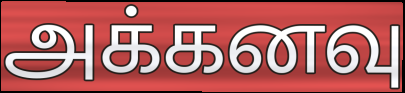
அக்கனவு